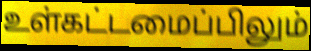
உள்கட்டமைப்பிலும்